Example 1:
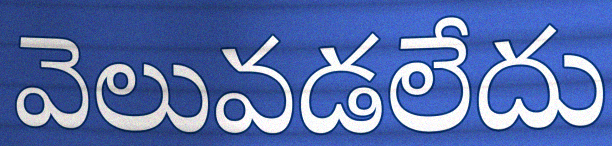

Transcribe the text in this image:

వెలువడలేదు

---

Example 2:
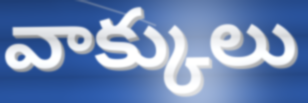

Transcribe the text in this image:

వాక్కులు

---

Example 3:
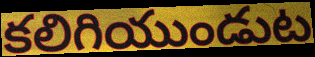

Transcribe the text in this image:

కలిగియుండుట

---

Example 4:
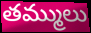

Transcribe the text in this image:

తమ్ములు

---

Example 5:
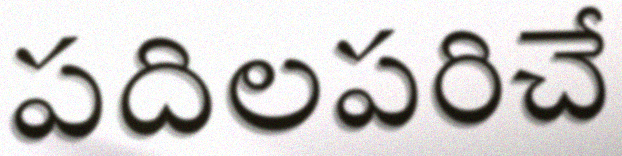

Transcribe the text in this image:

పదిలపరిచే